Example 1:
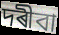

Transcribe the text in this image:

দৰীবা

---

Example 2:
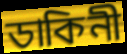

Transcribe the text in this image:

ডাকিনী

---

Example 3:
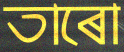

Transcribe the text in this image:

তাৰো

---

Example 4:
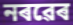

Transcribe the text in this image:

নৰৱেৰ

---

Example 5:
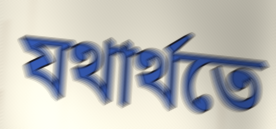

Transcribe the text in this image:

যথাৰ্থতে